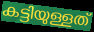
കട്ടിയുള്ളത്